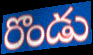
రొండు